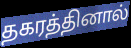
தகரத்தினால்